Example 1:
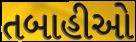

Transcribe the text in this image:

તબાહીઓ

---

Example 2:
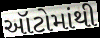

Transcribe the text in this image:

ઑટોમાંથી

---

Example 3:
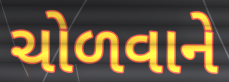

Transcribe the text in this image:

ચોળવાને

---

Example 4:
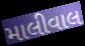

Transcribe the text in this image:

માલીવાલ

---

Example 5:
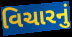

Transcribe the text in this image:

વિચારનું